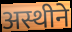
अस्थीने